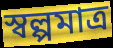
স্বল্পমাত্র